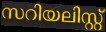
സറിയലിസ്റ്റ്